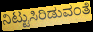
ನಿಟ್ಟುಸಿರಿಡುವಂತೆ